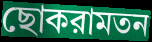
ছোকরামতন